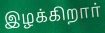
இழக்கிறார்